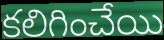
కలిగించేయి